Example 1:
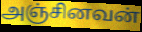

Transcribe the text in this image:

அஞ்சினவன்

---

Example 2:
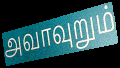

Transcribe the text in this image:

அவாவுறும்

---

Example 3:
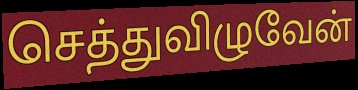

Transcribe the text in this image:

செத்துவிழுவேன்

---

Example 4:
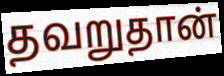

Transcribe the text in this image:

தவறுதான்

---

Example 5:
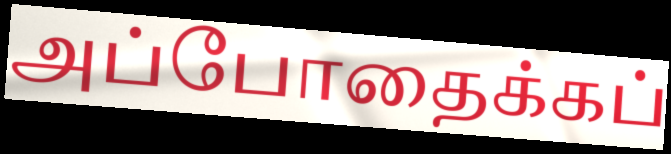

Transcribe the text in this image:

அப்போதைக்கப்